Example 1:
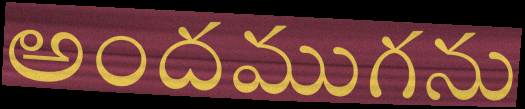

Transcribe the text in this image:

అందముగను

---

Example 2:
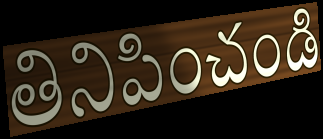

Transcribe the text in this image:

తినిపించండి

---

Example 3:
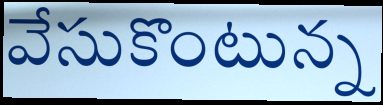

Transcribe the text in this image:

వేసుకొంటున్న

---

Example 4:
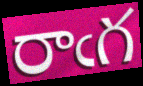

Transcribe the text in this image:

రాఁగ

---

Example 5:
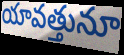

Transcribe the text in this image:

యావత్తునూ